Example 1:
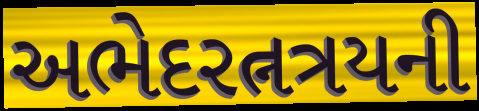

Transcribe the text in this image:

અભેદરત્નત્રયની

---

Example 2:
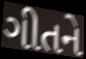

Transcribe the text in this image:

ગીતને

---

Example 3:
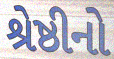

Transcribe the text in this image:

શ્રેષ્ઠીનો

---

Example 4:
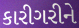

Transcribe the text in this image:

કારીગરીને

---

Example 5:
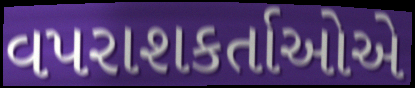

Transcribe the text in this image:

વપરાશકર્તાઓએ